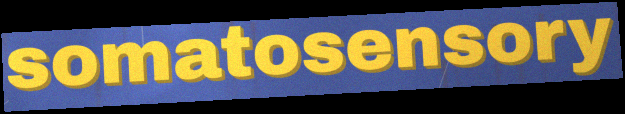
somatosensory